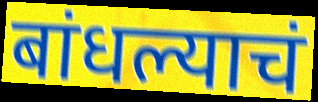
बांधल्याचं